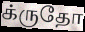
க்ருதோ